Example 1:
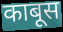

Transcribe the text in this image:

काबूस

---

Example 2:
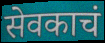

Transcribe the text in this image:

सेवकाचं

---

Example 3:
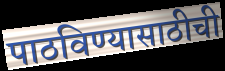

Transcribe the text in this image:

पाठविण्यासाठीची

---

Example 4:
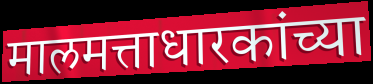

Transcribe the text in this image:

मालमत्ताधारकांच्या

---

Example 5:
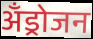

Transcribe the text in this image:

अँड्रोजन